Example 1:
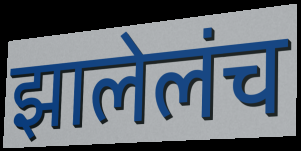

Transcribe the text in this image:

झालेलंच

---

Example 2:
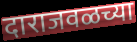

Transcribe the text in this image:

दाराजवळच्या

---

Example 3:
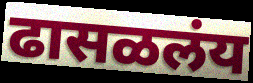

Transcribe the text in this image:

ढासळलंय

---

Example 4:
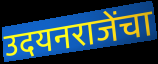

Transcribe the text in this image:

उदयनराजेंचा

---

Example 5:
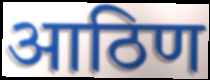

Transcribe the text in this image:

आठिण